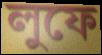
লুফে